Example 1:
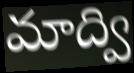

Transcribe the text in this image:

మాద్వి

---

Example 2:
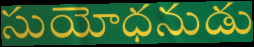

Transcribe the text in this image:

సుయోధనుడు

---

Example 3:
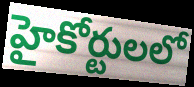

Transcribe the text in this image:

హైకోర్టులలో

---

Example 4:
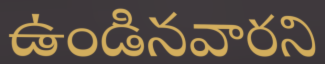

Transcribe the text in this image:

ఉండినవారని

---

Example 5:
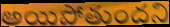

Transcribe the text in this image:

అయిపోతుందని